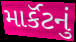
માર્કૅટનું